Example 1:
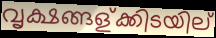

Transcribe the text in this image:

വൃക്ഷങ്ങള്ക്കിടയില്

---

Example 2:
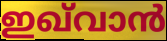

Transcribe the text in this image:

ഇഖ്‌വാൻ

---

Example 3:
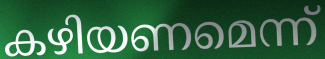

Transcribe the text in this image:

കഴിയണമെന്ന്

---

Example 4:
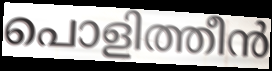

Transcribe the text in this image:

പൊളിത്തീൻ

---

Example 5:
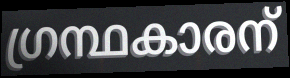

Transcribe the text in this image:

ഗ്രന്ഥകാരന്